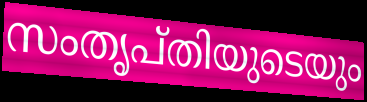
സംതൃപ്തിയുടെയും